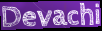
Devachi